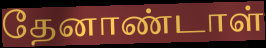
தேனாண்டாள்